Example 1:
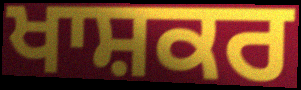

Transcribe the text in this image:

ਖਾਸ਼ਕਰ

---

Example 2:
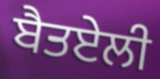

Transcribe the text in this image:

ਬੈਤਏਲੀ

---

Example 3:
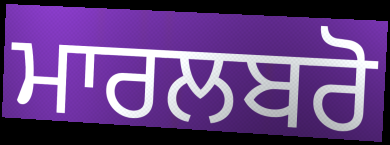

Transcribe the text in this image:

ਮਾਰਲਬਰੋ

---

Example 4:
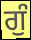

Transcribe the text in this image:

ਗੁੰ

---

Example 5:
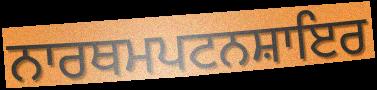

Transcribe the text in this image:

ਨਾਰਥਮਪਟਨਸ਼ਾਇਰ